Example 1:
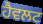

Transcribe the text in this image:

ਹੈਵਲਟ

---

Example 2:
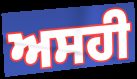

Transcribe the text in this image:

ਅਸਹੀ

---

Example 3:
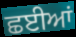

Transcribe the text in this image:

ਛਈਆਂ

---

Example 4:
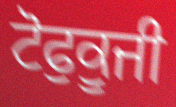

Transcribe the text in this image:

ਟੋਫੁਕੂਜੀ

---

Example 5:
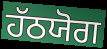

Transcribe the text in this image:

ਹੱਠਯੋਗ